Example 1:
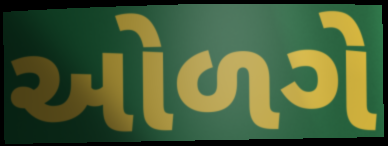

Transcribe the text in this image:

ઓળગે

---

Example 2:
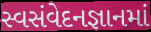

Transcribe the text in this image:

સ્વસંવેદનજ્ઞાનમાં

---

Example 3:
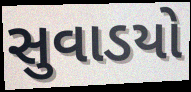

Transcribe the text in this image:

સુવાડયો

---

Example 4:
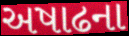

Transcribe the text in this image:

અષાઢના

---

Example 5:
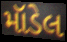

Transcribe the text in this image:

મૉડેલ